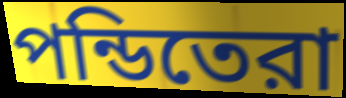
পন্ডিতেরা